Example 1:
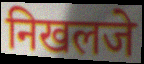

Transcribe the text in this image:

निखलजे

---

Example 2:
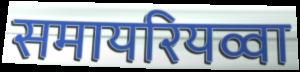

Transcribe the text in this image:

समायरियव्वा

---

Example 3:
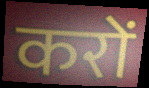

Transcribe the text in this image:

करों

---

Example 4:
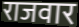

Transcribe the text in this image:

राजवार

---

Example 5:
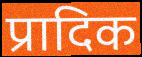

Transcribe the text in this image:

प्रादिक